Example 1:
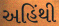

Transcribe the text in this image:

અહિંથી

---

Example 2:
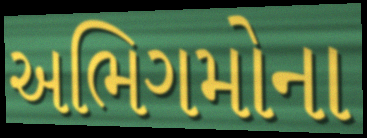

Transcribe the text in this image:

અભિગમોના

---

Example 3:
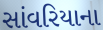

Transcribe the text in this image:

સાંવરિયાના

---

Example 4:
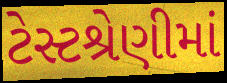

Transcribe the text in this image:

ટેસ્ટશ્રેણીમાં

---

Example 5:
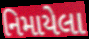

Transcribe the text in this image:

નિમાયેલા